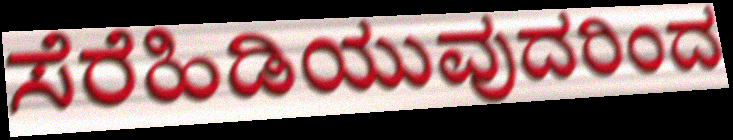
ಸೆರೆಹಿಡಿಯುವುದರಿಂದ